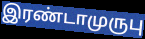
இரண்டாமுருபு